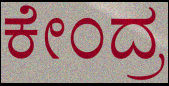
ಕೇಂದ್ರ